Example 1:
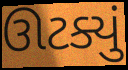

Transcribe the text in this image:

ઊટક્યું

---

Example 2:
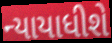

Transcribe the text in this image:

ન્યાયાધીશે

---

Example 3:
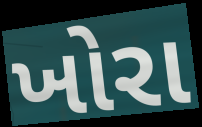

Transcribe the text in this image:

ખોરા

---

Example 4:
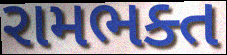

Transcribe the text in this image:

રામભક્ત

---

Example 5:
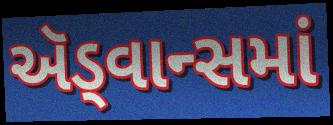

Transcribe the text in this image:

ઍડ્વાન્સમાં